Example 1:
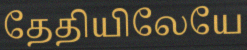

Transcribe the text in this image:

தேதியிலேயே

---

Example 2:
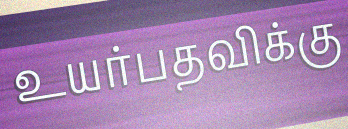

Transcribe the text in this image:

உயர்பதவிக்கு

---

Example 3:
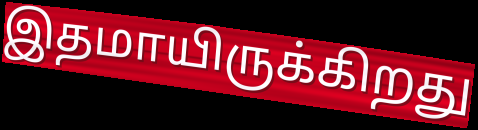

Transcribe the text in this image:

இதமாயிருக்கிறது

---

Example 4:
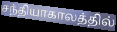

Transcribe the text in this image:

சந்தியாகாலத்தில்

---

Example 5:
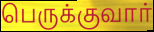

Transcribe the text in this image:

பெருக்குவார்